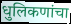
धुलिकणांचा